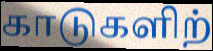
காடுகளிற்